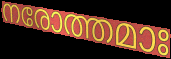
നരോത്തമാഃ